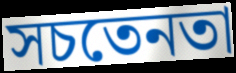
সচতেনতা